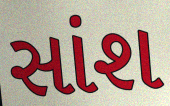
સાંશ